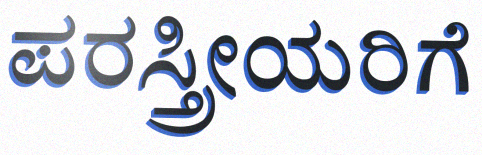
ಪರಸ್ತ್ರೀಯರಿಗೆ